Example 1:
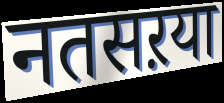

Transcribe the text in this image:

नतसऱया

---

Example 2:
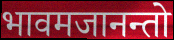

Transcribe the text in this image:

भावमजानन्तो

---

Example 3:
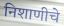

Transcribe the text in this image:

निशाणीचे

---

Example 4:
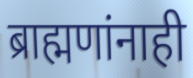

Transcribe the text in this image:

ब्राह्मणांनाही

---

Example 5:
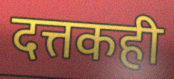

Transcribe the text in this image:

दत्तकही